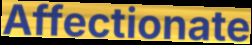
Affectionate